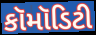
કૉમૉડિટી